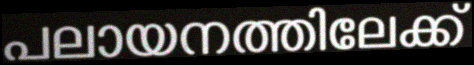
പലായനത്തിലേക്ക്